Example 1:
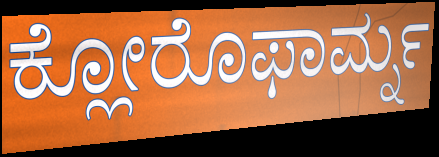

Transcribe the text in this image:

ಕ್ಲೋರೊಫಾರ್ಮ್ನ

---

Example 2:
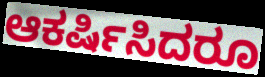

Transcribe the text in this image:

ಆಕರ್ಷಿಸಿದರೂ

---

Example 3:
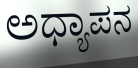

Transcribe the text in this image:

ಅಧ್ಯಾಪನ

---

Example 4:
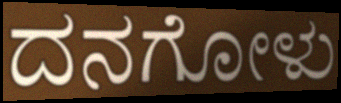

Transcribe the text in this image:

ದನಗೋಳು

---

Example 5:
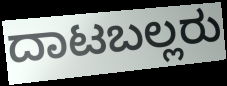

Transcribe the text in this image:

ದಾಟಬಲ್ಲರು